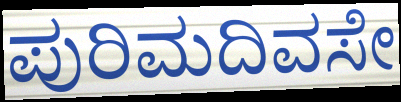
ಪುರಿಮದಿವಸೇ